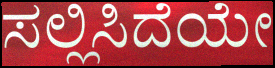
ಸಲ್ಲಿಸಿದೆಯೇ